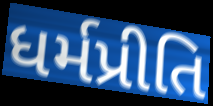
ધર્મપ્રીતિ